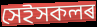
সেইসকলৰ